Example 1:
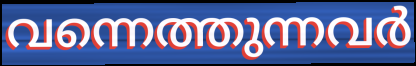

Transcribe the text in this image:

വന്നെത്തുന്നവർ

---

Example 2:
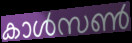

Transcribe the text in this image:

കാൾസൺ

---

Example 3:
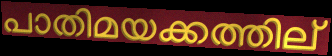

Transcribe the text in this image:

പാതിമയക്കത്തില്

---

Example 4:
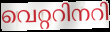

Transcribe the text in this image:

വെറ്ററിനറി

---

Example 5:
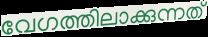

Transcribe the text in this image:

വേഗത്തിലാക്കുന്നത്